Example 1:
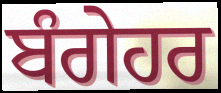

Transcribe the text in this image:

ਬੰਗੇਹਰ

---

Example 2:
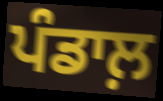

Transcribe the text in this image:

ਪੰਡਾਲ਼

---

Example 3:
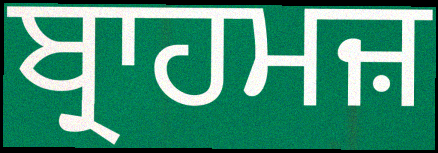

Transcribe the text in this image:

ਬ੍ਰਾਹਮਜ਼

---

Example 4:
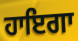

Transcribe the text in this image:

ਹਾਇਗਾ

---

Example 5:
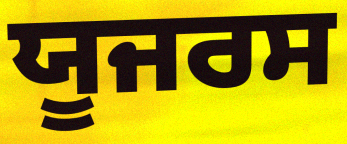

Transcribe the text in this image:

ਯੂਜਰਸ